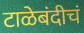
टाळेबंदीचं